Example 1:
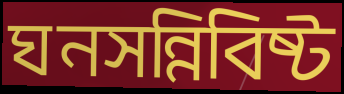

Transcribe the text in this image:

ঘনসন্নিবিষ্ট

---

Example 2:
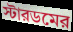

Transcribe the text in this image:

স্টারডমের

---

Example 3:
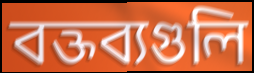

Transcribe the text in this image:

বক্তব্যগুলি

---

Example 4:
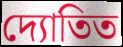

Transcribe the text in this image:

দ্যোতিত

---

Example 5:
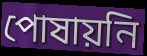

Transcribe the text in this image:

পোষায়নি